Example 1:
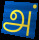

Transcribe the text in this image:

அ்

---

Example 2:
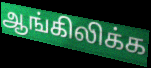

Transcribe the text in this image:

ஆங்கிலிக்க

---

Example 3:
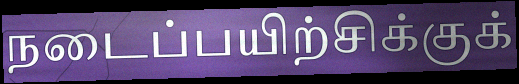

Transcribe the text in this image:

நடைப்பயிற்சிக்குக்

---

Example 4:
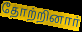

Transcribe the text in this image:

தோற்றினார்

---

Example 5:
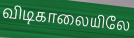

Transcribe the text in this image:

விடிகாலையிலே